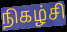
நிகழ்சி